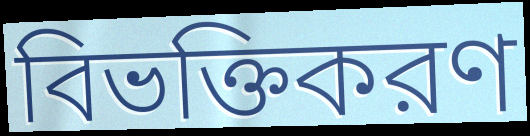
বিভক্তিকরণ